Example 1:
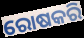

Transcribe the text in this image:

ରୋଷକରି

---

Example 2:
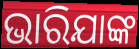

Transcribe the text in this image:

ଭାରିଯାଙ୍କ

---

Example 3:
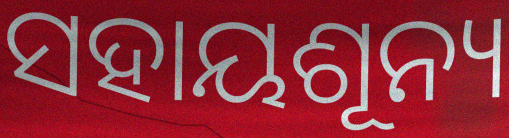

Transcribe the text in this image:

ସହାୟଶୂନ୍ୟ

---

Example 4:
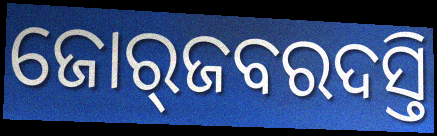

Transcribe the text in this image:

ଜୋର୍‍ଜବରଦସ୍ତି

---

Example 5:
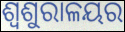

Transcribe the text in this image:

ଶ୍ୱଶୁରାଳୟର